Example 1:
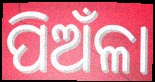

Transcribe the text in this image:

ପିଅଁଳା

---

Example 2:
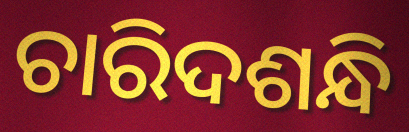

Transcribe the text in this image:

ଚାରିଦଶନ୍ଧି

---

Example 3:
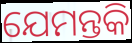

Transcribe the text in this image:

ଯେମନ୍ତକି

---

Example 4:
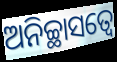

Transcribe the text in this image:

ଅନିଚ୍ଛାସତ୍ୱେ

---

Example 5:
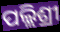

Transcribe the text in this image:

ପଲ୍ଲିଶ୍ରୀ